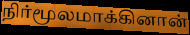
நிர்மூலமாக்கினான்